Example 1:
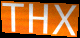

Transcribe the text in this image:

THX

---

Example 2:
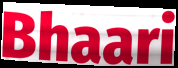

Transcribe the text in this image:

Bhaari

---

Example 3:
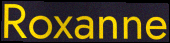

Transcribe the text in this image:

Roxanne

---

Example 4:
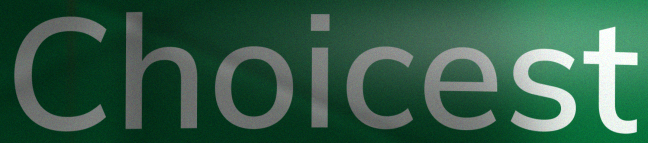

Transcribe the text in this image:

Choicest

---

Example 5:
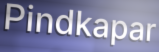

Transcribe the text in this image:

Pindkapar